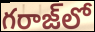
గరాజ్‌లో